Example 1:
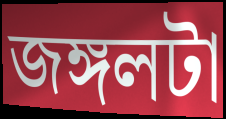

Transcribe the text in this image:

জঙ্গলটা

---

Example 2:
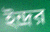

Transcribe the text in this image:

ইন্দ্রর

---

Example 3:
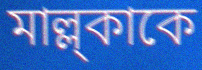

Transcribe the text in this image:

মাল্ল্কাকে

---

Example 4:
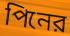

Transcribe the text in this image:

পিনের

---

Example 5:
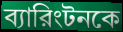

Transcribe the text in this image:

ব্যারিংটনকে